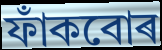
ফাঁকবোৰ